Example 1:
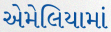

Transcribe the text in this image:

એમેલિયામાં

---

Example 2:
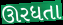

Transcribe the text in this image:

ઊરધતા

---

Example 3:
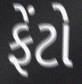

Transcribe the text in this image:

ફેંટો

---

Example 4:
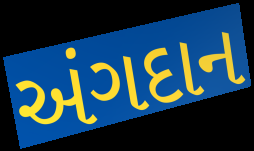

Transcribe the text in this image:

અંગદાન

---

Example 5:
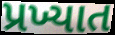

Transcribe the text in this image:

પ્રખ્યાત